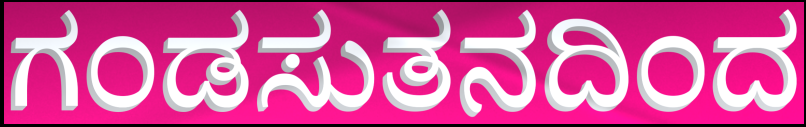
ಗಂಡಸುತನದಿಂದ